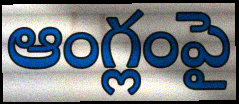
ఆంగ్లంపై